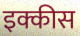
इक्कीस